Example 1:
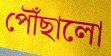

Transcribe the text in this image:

পৌঁছালো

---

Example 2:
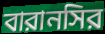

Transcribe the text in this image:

বারানসির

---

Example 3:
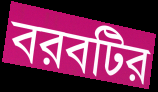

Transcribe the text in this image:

বরবটির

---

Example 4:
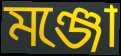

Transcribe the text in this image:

মঞ্জো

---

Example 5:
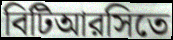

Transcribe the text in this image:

বিটিআরসিতে